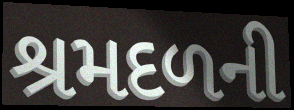
શ્રમદળની